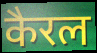
कैरल